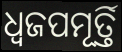
ଧ୍ୱଜପମୂର୍ତ୍ତି